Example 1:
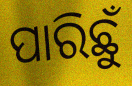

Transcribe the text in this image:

ପାରିଛୁଁ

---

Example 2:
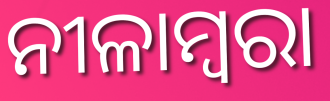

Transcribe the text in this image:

ନୀଳାମ୍ବରା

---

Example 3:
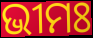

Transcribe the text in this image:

ଭୀମଃ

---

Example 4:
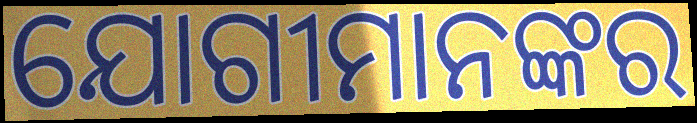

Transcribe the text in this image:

ଯୋଗୀମାନଙ୍କର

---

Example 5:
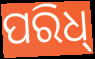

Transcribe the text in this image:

ପରିଧ୍